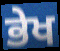
ਭੇਖ